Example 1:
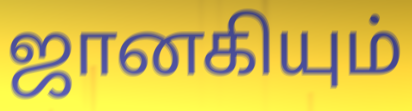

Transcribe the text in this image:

ஜானகியும்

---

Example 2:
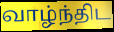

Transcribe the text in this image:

வாழ்ந்திட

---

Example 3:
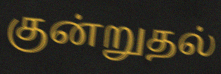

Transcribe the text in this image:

குன்றுதல்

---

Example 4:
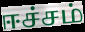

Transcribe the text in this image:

ஈச்சம்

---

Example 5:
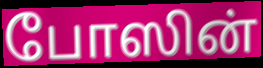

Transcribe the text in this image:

போஸின்